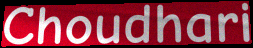
Choudhari